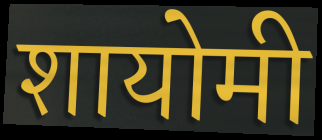
शायोमी